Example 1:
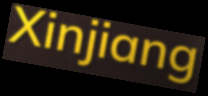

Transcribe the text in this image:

Xinjiang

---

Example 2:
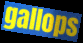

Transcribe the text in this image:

gallops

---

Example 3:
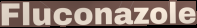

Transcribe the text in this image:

Fluconazole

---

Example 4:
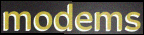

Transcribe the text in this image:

modems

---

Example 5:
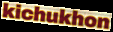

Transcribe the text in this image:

kichukhon